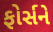
ફોર્સને